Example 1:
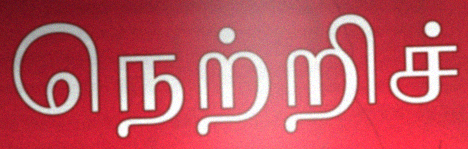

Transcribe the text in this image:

நெற்றிச்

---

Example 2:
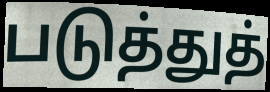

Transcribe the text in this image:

படுத்துத்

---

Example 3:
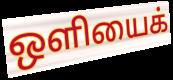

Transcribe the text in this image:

ஒளியைக்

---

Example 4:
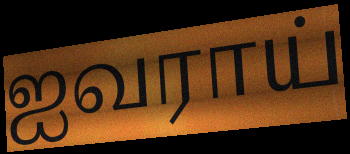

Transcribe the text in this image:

ஐவராய்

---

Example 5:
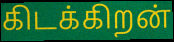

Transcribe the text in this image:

கிடக்கிறன்